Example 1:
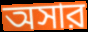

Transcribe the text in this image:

অসার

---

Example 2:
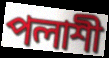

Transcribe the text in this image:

পলাশী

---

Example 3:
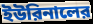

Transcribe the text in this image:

ইউরিনালের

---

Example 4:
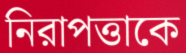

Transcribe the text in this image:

নিরাপত্তাকে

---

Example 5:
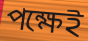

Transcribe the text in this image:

পক্ষেই